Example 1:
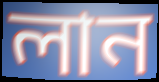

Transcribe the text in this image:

লান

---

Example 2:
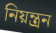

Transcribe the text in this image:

নিয়ন্ত্ৰন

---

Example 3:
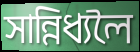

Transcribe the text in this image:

সান্নিধ্যলৈ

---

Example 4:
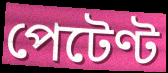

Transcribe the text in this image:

পেটেণ্ট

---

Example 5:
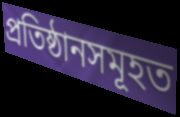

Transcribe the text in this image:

প্ৰতিষ্ঠানসমূহত